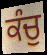
ਕੰਚੁ